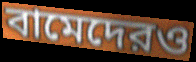
বামেদেরও